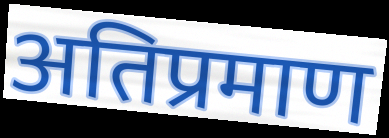
अतिप्रमाण